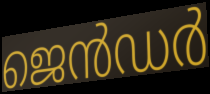
ജെൻഡർ